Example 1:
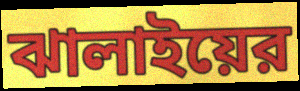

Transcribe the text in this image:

ঝালাইয়ের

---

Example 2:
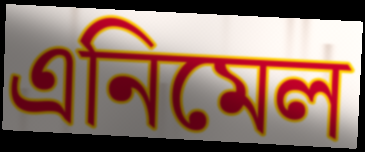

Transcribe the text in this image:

এনিমেল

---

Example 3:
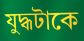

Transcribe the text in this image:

যুদ্ধটাকে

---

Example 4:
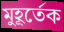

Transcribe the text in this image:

মুহূর্তেক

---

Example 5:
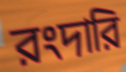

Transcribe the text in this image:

রংদারি